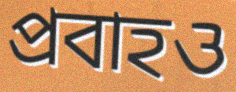
প্রবাহও